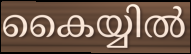
കൈയ്യിൽ